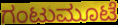
ಗಂಟುಮೂಟೆ